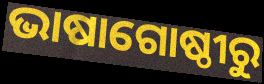
ଭାଷାଗୋଷ୍ଠୀରୁ